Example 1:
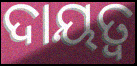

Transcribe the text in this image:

ଦାୟତ୍ବ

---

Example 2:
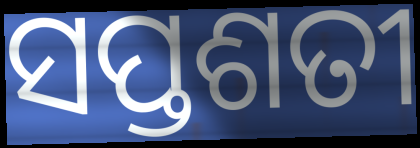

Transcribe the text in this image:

ସପ୍ତଶତୀ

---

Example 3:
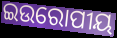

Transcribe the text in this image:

ଇଉରୋପୀୟ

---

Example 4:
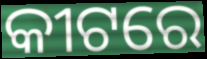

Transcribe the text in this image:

କୀଟରେ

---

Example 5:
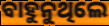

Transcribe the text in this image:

ବାହୁନୁଥିଲେ